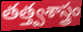
తత్త్వశాస్త్రం